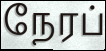
நேரப்